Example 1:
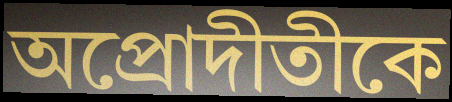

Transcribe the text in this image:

অপ্রোদীতীকে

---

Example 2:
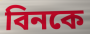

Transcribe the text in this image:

বিনকে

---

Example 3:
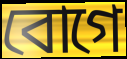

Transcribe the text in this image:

বোগে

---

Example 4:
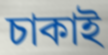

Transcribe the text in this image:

চাকাই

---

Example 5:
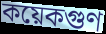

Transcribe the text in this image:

কয়েকগুণ